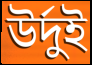
উর্দুই